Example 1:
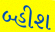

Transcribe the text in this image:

બ્હીશ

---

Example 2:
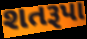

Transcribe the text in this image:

શતરૂપા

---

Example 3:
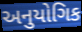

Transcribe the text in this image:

અનુયોગિક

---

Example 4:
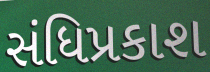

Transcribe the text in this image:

સંધિપ્રકાશ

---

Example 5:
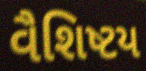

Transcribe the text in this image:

વૈશિષ્ટય